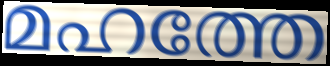
മഹത്തേ